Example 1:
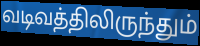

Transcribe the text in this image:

வடிவத்திலிருந்தும்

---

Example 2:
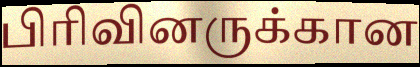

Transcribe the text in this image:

பிரிவினருக்கான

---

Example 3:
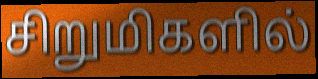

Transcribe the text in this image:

சிறுமிகளில்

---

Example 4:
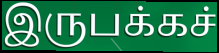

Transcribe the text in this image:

இருபக்கச்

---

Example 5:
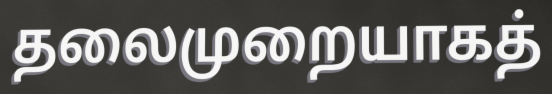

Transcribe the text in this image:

தலைமுறையாகத்